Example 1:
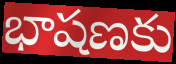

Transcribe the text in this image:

భాషణకు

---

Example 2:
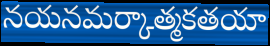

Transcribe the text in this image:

నయనమర్కాత్మకతయా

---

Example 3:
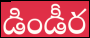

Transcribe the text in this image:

డిండీర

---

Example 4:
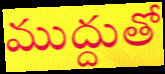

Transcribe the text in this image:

ముద్దుతో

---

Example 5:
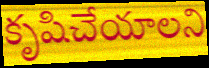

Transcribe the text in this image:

కృషిచేయాలని